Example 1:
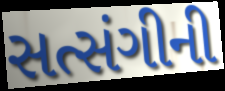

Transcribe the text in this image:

સત્સંગીની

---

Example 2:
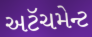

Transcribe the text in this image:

અટૅચમેન્ટ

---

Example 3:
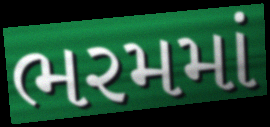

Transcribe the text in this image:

ભરમમાં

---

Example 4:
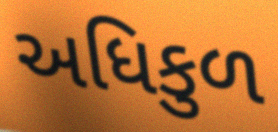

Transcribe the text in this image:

અધિકુળ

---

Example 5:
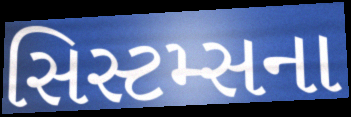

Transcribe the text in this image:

સિસ્ટમ્સના